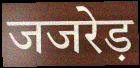
जजरेड़